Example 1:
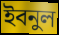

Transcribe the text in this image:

ইবনুল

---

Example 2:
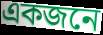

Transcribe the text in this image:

একজনে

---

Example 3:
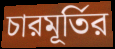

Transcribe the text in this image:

চারমূর্তির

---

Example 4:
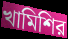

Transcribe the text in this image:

খামিশির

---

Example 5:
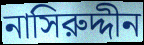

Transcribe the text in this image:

নাসিরুদ্দীন